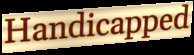
Handicapped